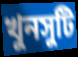
খুনসুটি